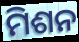
ମିଶନ